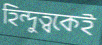
হিন্দুত্বকেই